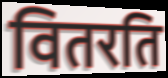
वितरति